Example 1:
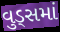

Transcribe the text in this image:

વુડ્સમાં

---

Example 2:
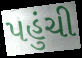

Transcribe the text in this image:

પહુંચી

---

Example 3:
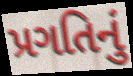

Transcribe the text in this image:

પ્રગતિનું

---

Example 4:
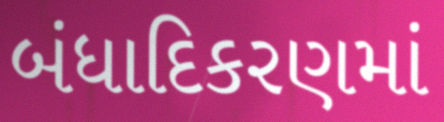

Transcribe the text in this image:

બંધાદિકરણમાં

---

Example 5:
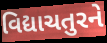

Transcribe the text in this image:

વિદ્યાચતુરને